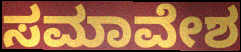
ಸಮಾವೇಶ